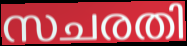
സചരതി